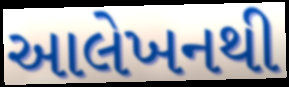
આલેખનથી